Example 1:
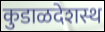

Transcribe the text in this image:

कुडाळदेशस्थ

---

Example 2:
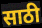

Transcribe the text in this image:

साठी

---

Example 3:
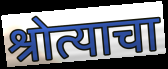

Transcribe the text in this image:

श्रोत्याचा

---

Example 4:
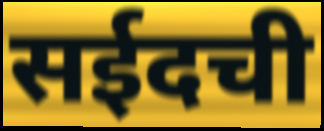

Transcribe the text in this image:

सईदची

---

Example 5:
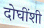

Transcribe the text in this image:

दोघींशी